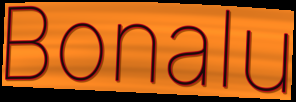
Bonalu